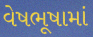
વેષભૂષામાં